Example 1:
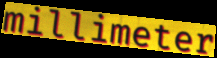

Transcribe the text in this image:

millimeter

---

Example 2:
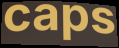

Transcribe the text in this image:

caps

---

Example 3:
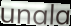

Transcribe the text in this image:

unala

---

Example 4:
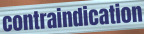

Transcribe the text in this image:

contraindication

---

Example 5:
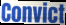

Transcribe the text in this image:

Convict